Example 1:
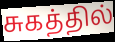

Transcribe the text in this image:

சுகத்தில்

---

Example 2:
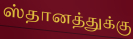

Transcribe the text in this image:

ஸ்தானத்துக்கு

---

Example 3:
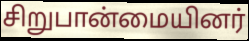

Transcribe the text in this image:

சிறுபான்மையினர்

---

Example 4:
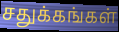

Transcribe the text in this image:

சதுக்கங்கள்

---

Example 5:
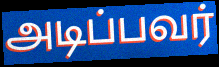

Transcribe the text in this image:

அடிப்பவர்